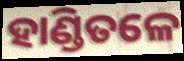
ହାଣ୍ଡିତଳେ